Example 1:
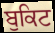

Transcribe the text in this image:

ਬੁਕਿਟ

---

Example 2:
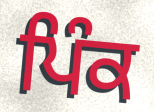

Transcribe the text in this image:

ਪਿੰਕ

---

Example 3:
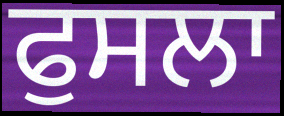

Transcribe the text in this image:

ਫੁਸਲਾ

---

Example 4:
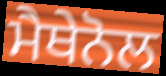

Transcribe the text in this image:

ਮੈਥੇਨੋਲ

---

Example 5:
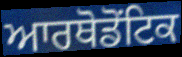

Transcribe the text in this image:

ਆਰਥੋਡੋਂਟਿਕ